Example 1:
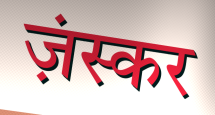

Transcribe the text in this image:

ज़ंस्कर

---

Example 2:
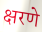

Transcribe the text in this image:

क्षरणे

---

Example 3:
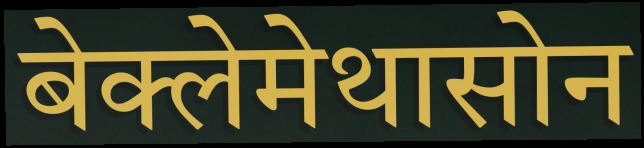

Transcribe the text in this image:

बेक्लेमेथासोन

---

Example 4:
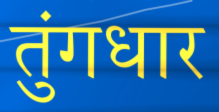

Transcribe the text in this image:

तुंगधार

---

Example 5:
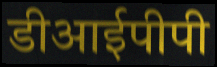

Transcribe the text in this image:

डीआईपीपी